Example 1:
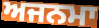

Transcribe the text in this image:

ਅਜਨਮਾ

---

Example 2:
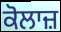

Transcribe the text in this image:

ਕੋਲਾਜ਼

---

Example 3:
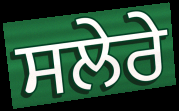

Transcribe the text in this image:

ਸਲੇਰੇ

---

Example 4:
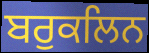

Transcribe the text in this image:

ਬਰੁਕਲਿਨ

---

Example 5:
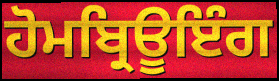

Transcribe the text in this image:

ਹੋਮਬ੍ਰਿਊਇੰਗ